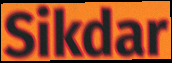
Sikdar